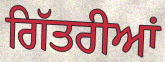
ਗਿੱਤਰੀਆਂ